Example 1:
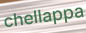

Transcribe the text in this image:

chellappa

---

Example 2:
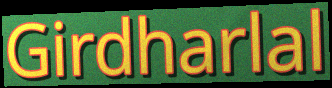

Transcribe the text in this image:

Girdharlal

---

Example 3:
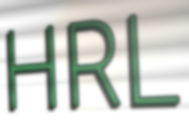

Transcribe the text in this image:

HRL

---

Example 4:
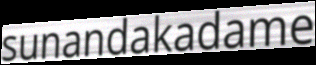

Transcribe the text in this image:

sunandakadame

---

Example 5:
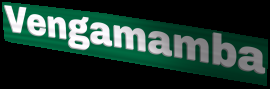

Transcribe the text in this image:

Vengamamba